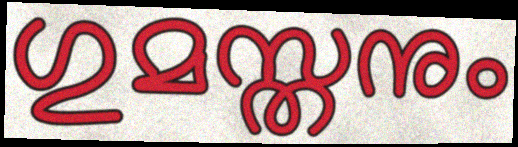
ഗുമസ്തനും